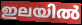
ഇലയിൽ